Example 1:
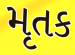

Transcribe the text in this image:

મૃતક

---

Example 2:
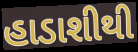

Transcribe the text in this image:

હાડાશીથી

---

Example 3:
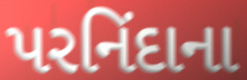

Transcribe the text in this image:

પરનિંદાના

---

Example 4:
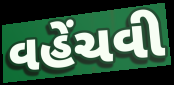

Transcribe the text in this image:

વહેંચવી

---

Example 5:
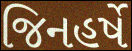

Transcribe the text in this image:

જિનહર્ષે